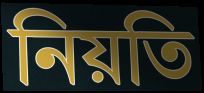
নিয়তি